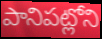
పానిపట్లోని